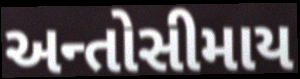
અન્તોસીમાય